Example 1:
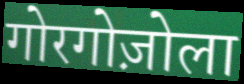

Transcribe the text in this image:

गोरगोज़ोला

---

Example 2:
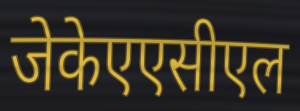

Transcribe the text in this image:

जेकेएएसीएल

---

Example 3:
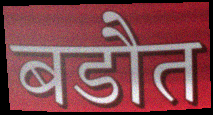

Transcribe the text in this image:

बडौत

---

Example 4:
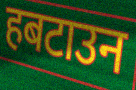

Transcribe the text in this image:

हबटाउन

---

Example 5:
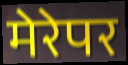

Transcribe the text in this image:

मेरेपर